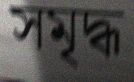
সমৃদ্ধ